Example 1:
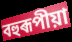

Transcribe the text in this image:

বহুৰূপীয়া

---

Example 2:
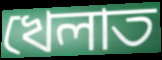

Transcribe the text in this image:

খেলাত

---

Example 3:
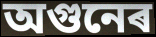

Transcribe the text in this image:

অগুনেৰ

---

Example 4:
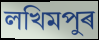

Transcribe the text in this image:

লখিমপুৰ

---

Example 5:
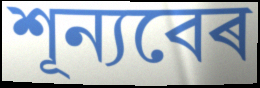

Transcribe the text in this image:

শূন্যবেৰ